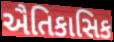
ઐતિકાસિક